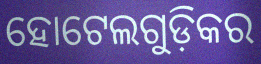
ହୋଟେଲଗୁଡ଼ିକର